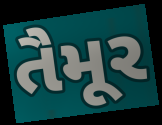
તૈમૂર